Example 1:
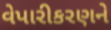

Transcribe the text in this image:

વેપારીકરણને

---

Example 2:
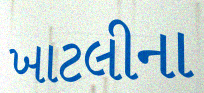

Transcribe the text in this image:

ખાટલીના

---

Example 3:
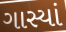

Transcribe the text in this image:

ગાસ્યાં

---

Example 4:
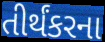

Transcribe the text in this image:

તીર્થંકરના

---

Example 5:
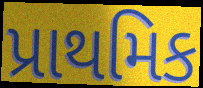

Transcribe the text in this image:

પ્રાથમિક